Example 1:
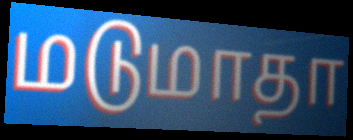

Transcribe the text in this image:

மடுமாதா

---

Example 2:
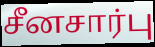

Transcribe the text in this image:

சீனசார்பு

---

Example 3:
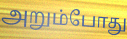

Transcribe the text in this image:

அறும்போது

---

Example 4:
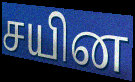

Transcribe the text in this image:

சயின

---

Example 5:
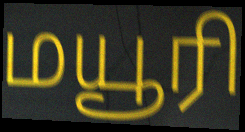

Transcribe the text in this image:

மயூரி